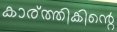
കാര്ത്തികിന്റെ